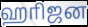
ஹரிஜன